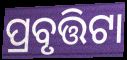
ପ୍ରବୃତ୍ତିଟା